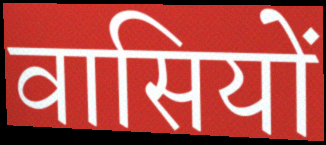
वासियों